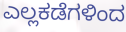
ಎಲ್ಲಕಡೆಗಳಿಂದ